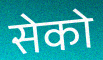
सेको